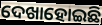
ଦେଖାହୋଇଛି